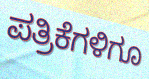
ಪತ್ರಿಕೆಗಳಿಗೂ